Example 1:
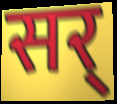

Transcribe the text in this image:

सर्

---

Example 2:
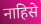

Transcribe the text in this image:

नाहिसे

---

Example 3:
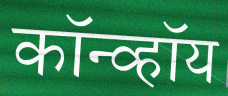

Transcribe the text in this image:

कॉन्व्हॉय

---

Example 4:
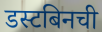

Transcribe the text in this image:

डस्टबिनची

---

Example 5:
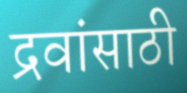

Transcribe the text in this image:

द्रवांसाठी